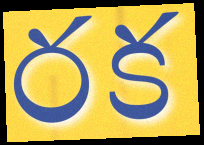
రక